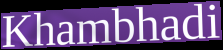
Khambhadi